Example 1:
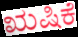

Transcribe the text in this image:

ಋಷಿಕೆ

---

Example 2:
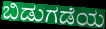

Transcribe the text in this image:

ಬಿಡುಗಡೆಯ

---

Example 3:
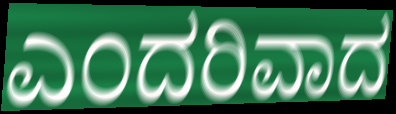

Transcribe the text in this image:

ಎಂದರಿವಾದ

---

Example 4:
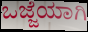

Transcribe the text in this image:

ಒಜ್ಜೆಯಾಗಿ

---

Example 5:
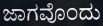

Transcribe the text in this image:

ಜಾಗವೊಂದು